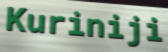
Kuriniji